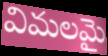
విమలమై